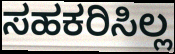
ಸಹಕರಿಸಿಲ್ಲ